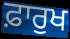
ਫ਼ਾਰੁਖ